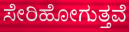
ಸೇರಿಹೋಗುತ್ತವೆ